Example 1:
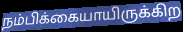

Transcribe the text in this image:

நம்பிக்கையாயிருக்கிற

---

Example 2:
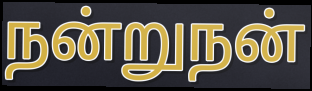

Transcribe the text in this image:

நன்றுநன்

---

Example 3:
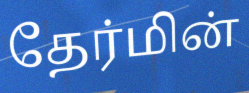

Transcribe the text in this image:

தேர்மின்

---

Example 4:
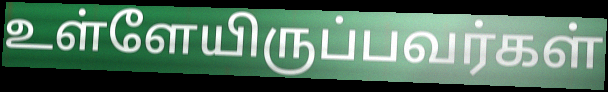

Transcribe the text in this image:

உள்ளேயிருப்பவர்கள்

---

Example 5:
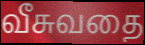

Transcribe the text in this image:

வீசுவதை